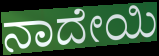
ನಾದೇಯಿ